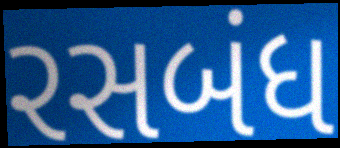
રસબંધ